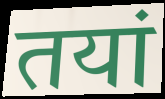
तयां